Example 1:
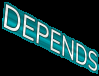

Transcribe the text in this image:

DEPENDS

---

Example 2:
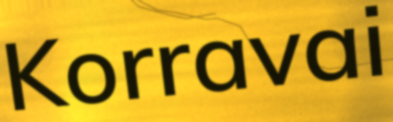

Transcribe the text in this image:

Korravai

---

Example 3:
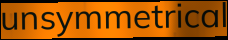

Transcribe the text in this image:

unsymmetrical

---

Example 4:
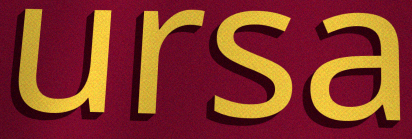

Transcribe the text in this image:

ursa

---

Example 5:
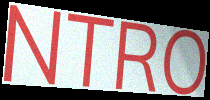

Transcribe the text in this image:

NTRO